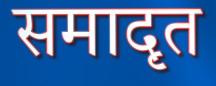
समादृत